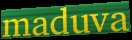
maduva